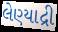
લેણ્યાદ્રી